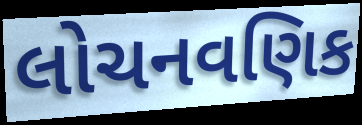
લોચનવણિક